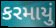
કરમાયું